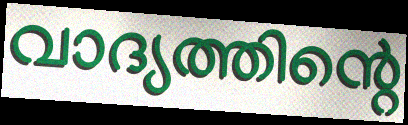
വാദ്യത്തിന്റെ